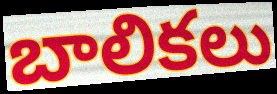
బాలికలు